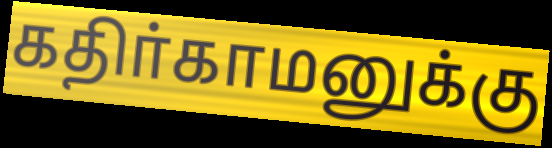
கதிர்காமனுக்கு